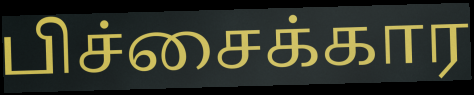
பிச்சைக்கார